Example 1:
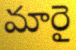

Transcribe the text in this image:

మారై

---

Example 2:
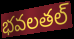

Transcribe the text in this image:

భవలతల్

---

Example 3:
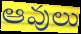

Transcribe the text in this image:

ఆవులు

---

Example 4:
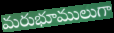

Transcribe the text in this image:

మరుభూములుగా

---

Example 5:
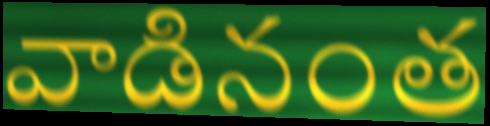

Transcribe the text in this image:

వాడినంత